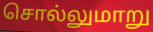
சொல்லுமாறு